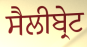
ਸੈਲੀਬ੍ਰੇਟ